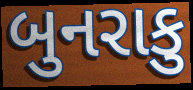
બુનરાકુ